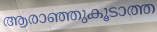
ആരാഞ്ഞുകൂടാത്ത